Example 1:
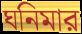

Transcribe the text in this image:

ঘনিমার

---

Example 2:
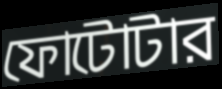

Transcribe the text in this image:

ফোটোটার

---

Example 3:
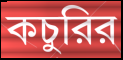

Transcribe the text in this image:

কচুরির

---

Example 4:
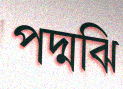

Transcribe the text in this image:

পদ্মঝি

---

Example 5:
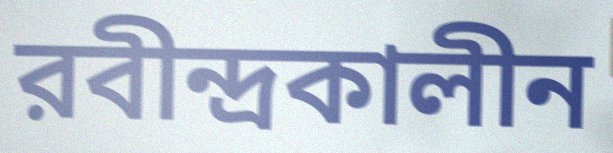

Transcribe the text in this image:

রবীন্দ্রকালীন